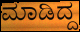
ಮಾಡಿದ್ದ